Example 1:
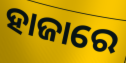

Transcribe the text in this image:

ହାଜାରେ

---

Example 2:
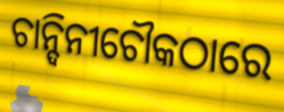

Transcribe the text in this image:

ଚାନ୍ଦିନୀଚୌକଠାରେ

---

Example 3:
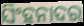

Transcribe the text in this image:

ସିଂହନାଦର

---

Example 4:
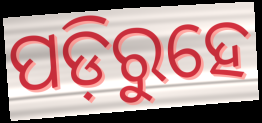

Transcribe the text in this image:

ପଡ଼ିରୁହେ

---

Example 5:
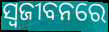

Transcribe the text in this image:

ସ୍ଵଜୀବନରେ